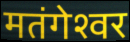
मतंगेश्वर